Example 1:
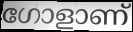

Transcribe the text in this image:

ഗോളാണ്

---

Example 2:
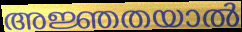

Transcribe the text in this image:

അജ്ഞതയാൽ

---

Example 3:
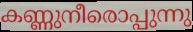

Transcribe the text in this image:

കണ്ണുനീരൊപ്പുന്നു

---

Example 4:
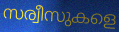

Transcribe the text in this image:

സര്വീസുകളെ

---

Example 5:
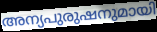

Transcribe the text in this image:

അന്യപുരുഷനുമായി